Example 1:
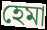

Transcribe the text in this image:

হেমা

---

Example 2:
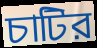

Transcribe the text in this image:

চাটির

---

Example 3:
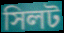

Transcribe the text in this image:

সিলট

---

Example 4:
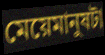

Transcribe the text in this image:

মেয়েমানুষটা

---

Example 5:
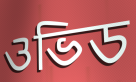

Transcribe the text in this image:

ওভিড